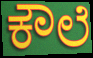
ಕೌಲೆ